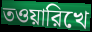
তওয়ারিখে